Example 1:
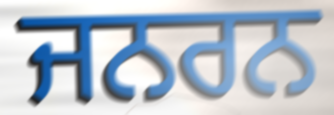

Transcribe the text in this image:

ਜਨਰਨ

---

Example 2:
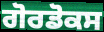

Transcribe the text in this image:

ਗੋਰਡੋਕਸ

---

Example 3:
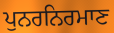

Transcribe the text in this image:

ਪੁਨਰਨਿਰਮਾਣ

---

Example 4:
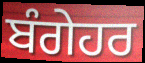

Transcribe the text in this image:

ਬੰਗੇਹਰ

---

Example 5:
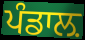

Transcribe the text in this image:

ਪੰਡਾਲ਼